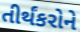
તીર્થંકરોને